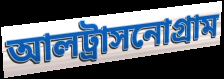
আলট্রাসনোগ্রাম